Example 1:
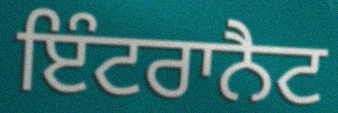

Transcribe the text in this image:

ਇੰਟਰਾਨੈਟ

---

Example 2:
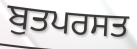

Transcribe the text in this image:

ਬੁਤਪਰਸਤ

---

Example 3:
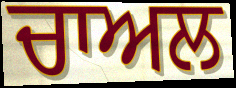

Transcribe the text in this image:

ਚਾਅਲ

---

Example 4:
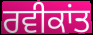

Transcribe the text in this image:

ਰਵੀਕਾਂਤ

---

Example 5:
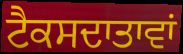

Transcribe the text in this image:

ਟੈਕਸਦਾਤਾਵਾਂ